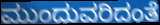
ಮುಂದುವರಿದಂತೆ